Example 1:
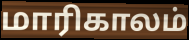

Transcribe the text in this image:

மாரிகாலம்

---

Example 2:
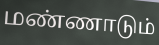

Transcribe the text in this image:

மண்ணாடும்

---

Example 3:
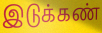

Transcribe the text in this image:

இடுக்கண்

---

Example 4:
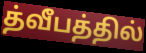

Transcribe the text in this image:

த்வீபத்தில்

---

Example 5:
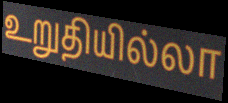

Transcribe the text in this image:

உறுதியில்லா